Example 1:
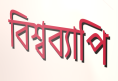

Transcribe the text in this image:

বিশ্বব্যাপি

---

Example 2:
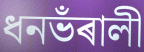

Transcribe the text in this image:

ধনভঁৰালী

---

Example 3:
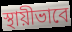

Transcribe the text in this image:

স্থায়ীভাবে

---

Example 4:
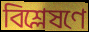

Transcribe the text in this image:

বিশ্লেষণে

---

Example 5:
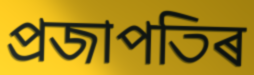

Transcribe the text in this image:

প্ৰজাপতিৰ